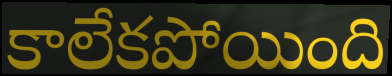
కాలేకపోయింది